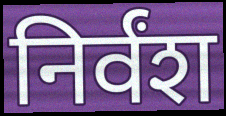
निर्वंश